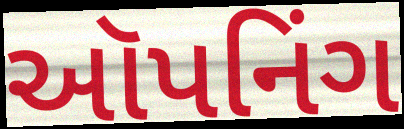
ઑપનિંગ